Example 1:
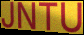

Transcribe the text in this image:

JNTU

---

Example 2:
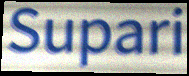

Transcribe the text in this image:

Supari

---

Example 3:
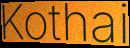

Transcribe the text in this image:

Kothai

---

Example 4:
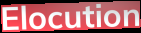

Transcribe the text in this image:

Elocution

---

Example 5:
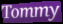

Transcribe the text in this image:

Tommy